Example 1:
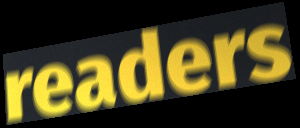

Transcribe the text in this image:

readers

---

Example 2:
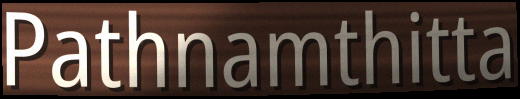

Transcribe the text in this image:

Pathnamthitta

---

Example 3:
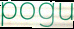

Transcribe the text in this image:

pogu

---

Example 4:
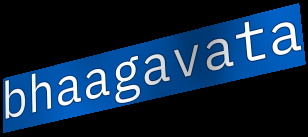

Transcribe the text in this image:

bhaagavata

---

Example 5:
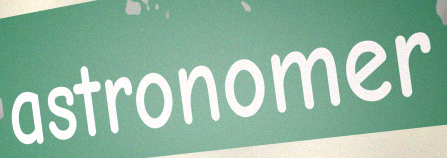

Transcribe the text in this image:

astronomer